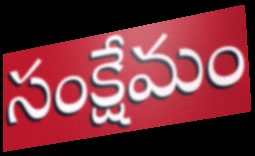
సంక్షేమం